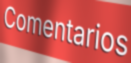
Comentarios